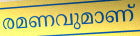
രമണവുമാണ്